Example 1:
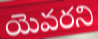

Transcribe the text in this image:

యెవరని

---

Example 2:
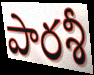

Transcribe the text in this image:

పారశీ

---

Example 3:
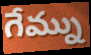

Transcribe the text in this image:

గేమ్ను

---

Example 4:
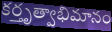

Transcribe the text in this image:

కర్తృత్వాభిమానం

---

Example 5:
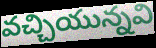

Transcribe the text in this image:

వచ్చియున్నవి